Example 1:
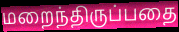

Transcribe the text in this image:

மறைந்திருப்பதை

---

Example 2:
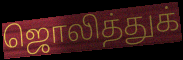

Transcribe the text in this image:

ஜொலித்துக்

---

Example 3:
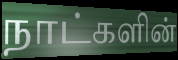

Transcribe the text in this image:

நாட்களின்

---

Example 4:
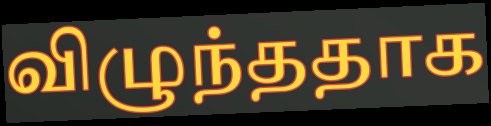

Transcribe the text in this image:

விழுந்ததாக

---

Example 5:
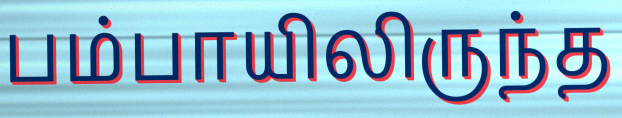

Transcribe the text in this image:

பம்பாயிலிருந்த